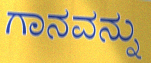
ಗಾನವನ್ನು